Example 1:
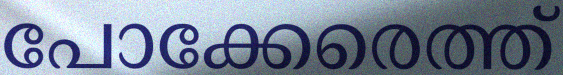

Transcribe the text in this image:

പോക്കേരെത്ത്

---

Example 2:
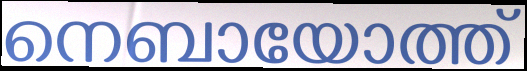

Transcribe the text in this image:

നെബായോത്ത്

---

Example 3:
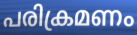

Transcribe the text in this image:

പരിക്രമണം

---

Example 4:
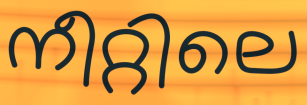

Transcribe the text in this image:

നീറ്റിലെ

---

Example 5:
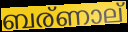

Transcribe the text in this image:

ബര്ണാല്